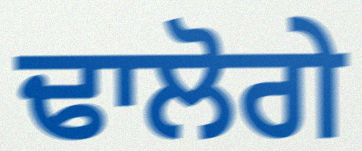
ਢਾਲੋਗੇ